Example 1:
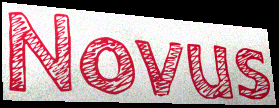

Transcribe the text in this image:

Novus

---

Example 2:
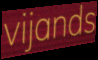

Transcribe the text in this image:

vijands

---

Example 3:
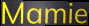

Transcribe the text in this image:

Mamie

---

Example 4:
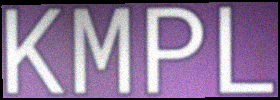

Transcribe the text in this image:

KMPL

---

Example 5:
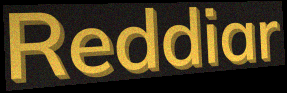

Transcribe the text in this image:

Reddiar